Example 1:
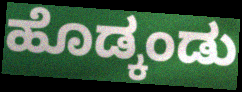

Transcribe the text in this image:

ಹೊಡ್ಕಂಡು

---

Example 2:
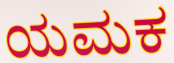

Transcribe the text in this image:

ಯಮಕ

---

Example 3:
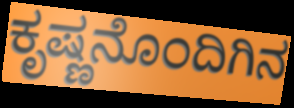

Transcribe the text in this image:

ಕೃಷ್ಣನೊಂದಿಗಿನ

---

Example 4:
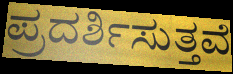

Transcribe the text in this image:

ಪ್ರದರ್ಶಿಸುತ್ತವೆ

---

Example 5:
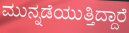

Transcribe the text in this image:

ಮುನ್ನಡೆಯುತ್ತಿದ್ದಾರೆ